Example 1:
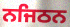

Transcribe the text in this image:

ਨਜਿਠਨ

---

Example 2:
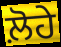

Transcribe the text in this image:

ਲ਼ੋਹੇ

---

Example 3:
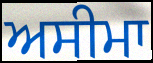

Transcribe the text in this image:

ਅਸੀਮਾ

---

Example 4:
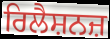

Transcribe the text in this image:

ਰਿਲੈਸ਼ਨਜ਼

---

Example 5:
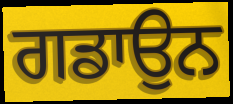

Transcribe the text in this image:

ਗਡਾਉਨ